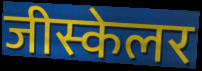
जीस्केलर